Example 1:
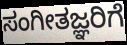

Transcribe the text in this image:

ಸಂಗೀತಜ್ಞರಿಗೆ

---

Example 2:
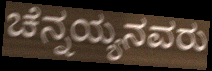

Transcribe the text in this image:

ಚೆನ್ನಯ್ಯನವರು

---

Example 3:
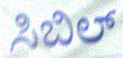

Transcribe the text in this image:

ಸಿಬಿಲ್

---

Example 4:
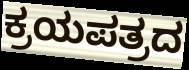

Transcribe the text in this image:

ಕ್ರಯಪತ್ರದ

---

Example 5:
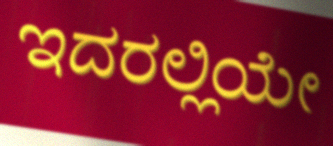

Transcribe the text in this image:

ಇದರಲ್ಲಿಯೇ